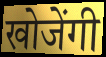
खोजेंगी